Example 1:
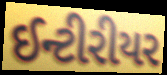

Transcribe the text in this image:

ઈન્ટીરીયર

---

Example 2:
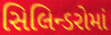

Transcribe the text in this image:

સિલિન્ડરોમાં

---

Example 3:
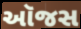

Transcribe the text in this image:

ઑજસ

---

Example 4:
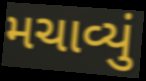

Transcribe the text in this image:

મચાવ્યું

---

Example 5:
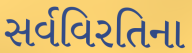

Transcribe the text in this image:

સર્વવિરતિના